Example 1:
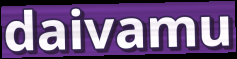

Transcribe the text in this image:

daivamu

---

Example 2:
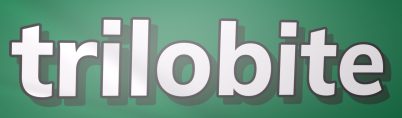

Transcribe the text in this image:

trilobite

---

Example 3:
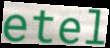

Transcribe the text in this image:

etel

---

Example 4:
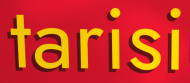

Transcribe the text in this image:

tarisi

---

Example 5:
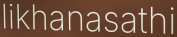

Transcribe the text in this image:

likhanasathi